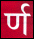
र्ण